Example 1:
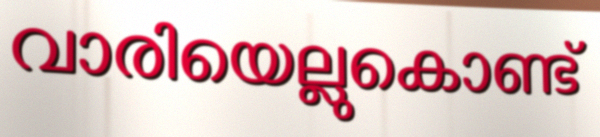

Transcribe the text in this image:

വാരിയെല്ലുകൊണ്ട്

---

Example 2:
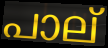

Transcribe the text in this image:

പാല്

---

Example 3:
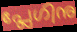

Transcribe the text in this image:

പ്ലേഗിനു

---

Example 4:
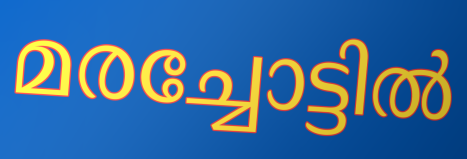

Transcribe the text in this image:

മരച്ചോട്ടിൽ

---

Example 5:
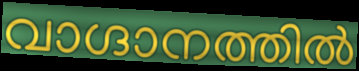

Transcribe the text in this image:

വാഗ്ദാനത്തിൽ